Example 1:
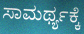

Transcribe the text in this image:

ಸಾಮರ್ಥ್ಯಕ್ಕೆ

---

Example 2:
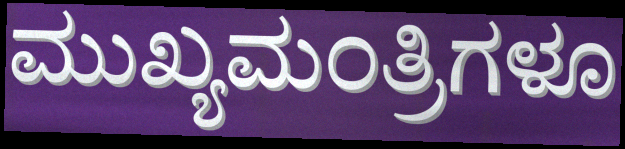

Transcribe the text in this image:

ಮುಖ್ಯಮಂತ್ರಿಗಳೂ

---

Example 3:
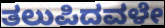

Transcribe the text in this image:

ತಲುಪಿದವಳೇ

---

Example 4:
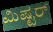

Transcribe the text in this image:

ಮಿಷ್ಟರ್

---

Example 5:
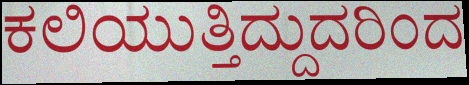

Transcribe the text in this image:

ಕಲಿಯುತ್ತಿದ್ದುದರಿಂದ